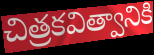
చిత్రకవిత్వానికి